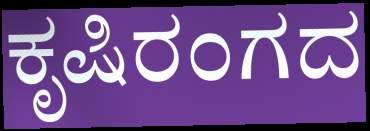
ಕೃಷಿರಂಗದ